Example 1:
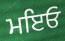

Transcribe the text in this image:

ਮਇਓ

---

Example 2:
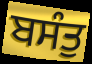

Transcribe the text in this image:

ਬਸੰਤੁ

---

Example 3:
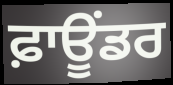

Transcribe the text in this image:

ਫ਼ਾਊਂਡਰ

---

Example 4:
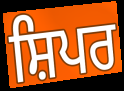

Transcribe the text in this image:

ਸ਼ਿਪਰ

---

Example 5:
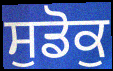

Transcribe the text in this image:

ਸੁਡੋਕੁ